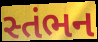
સ્તંભન